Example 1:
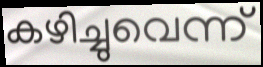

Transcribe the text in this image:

കഴിച്ചുവെന്ന്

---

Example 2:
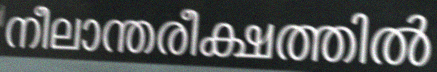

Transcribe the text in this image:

നീലാന്തരീക്ഷത്തിൽ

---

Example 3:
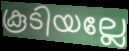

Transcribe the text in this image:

കൂടിയല്ലേ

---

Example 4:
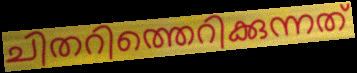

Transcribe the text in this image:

ചിതറിത്തെറിക്കുന്നത്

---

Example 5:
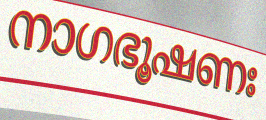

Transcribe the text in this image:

നാഗഭൂഷണഃ